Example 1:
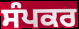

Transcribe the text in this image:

ਸੰਪਕਰ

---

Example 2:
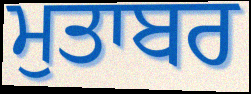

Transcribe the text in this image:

ਮੁਤਾਬਰ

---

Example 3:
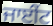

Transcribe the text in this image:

ਜਾਈਂਟ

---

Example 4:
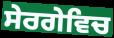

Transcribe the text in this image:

ਸੇਰਗੇਵਿਚ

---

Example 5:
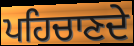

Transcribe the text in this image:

ਪਹਿਚਾਣਦੇ